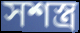
সশস্ত্ৰ